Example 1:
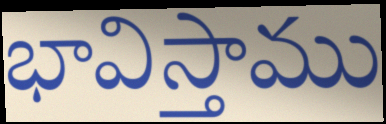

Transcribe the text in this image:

భావిస్తాము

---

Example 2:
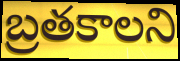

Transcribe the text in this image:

బ్రతకాలని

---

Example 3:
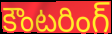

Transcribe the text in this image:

కౌంటరింగ్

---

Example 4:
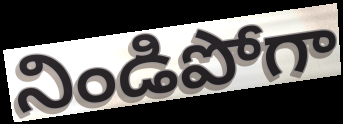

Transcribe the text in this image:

నిండిపోగా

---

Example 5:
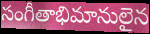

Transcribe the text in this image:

సంగీతాభిమానులైన